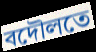
বদৌলতে